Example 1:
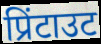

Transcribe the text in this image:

प्रिंटाउट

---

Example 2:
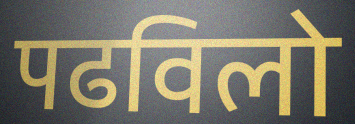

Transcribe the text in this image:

पढविलो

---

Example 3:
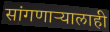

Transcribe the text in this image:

सांगणाऱ्यालाही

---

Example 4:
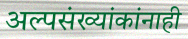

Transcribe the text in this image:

अल्पसंख्यांकांनाही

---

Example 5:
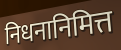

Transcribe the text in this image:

निधनानिमित्त